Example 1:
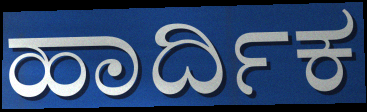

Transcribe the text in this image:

ಹಾರ್ದಿಕ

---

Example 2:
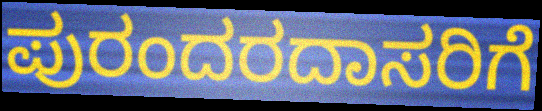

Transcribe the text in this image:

ಪುರಂದರದಾಸರಿಗೆ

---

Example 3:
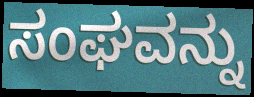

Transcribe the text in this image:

ಸಂಘವನ್ನು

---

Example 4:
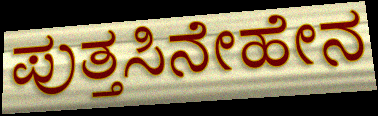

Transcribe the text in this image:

ಪುತ್ತಸಿನೇಹೇನ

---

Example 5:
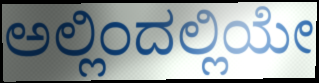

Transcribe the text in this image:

ಅಲ್ಲಿಂದಲ್ಲಿಯೇ